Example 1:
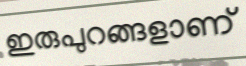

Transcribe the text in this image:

ഇരുപുറങ്ങളാണ്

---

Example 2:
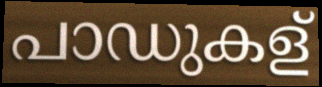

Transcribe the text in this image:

പാഡുകള്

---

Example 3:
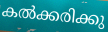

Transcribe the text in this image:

കൽക്കരിക്കു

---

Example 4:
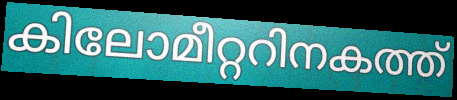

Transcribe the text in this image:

കിലോമീറ്ററിനകത്ത്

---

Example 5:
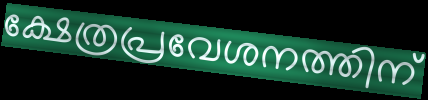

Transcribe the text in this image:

ക്ഷേത്രപ്രവേശനത്തിന്